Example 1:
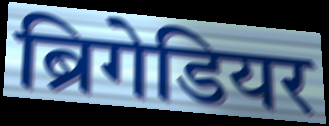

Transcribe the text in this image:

ब्रिगेडियर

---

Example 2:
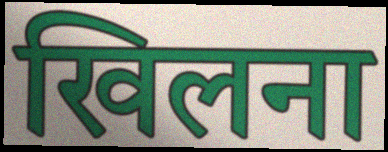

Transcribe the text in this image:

खिलना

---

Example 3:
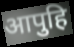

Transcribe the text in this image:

आपुहि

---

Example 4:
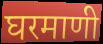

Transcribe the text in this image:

घरमाणी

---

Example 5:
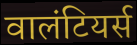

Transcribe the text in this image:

वालंटियर्स